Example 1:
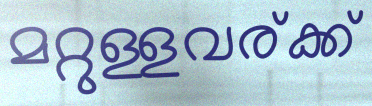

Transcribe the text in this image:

മറ്റുള്ളവര്ക്ക്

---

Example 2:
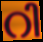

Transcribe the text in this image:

റി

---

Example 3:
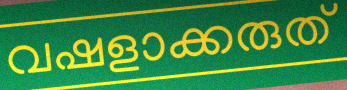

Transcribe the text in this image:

വഷളാക്കരുത്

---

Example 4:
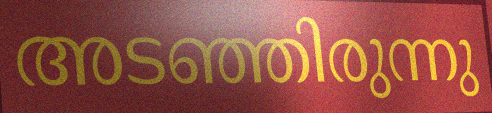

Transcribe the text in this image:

അടഞ്ഞിരുന്നു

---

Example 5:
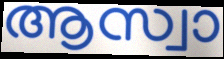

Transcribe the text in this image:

ആസ്വാ